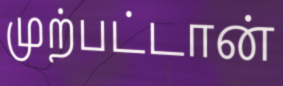
முற்பட்டான்